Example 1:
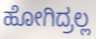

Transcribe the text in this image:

ಹೋಗಿದ್ರಲ್ಲ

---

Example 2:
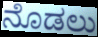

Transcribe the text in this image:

ನೊಡಲು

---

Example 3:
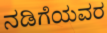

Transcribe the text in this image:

ನಡಿಗೆಯವರ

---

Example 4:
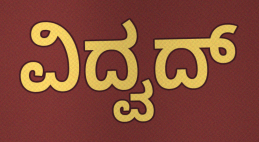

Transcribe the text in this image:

ವಿದ್ವದ್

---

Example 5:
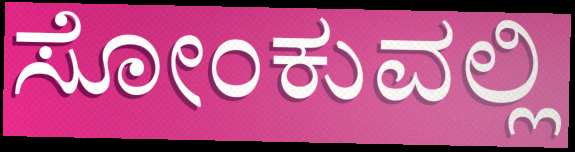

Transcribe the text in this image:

ಸೋಂಕುವಲ್ಲಿ